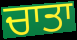
ਚਾਤਾ